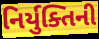
નિર્યુક્તિની